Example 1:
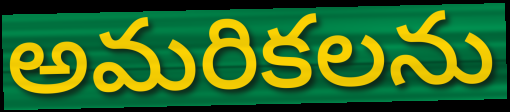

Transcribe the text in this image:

అమరికలను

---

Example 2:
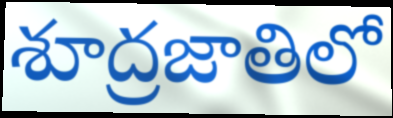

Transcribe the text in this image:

శూద్రజాతిలో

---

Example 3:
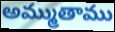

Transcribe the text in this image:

అమ్ముతాము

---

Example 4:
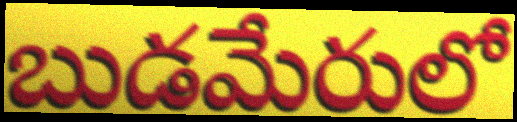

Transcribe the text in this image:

బుడమేరులో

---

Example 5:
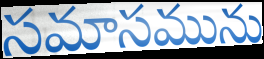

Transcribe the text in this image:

సమాసమును